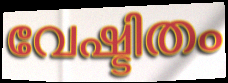
വേഷ്ടിതം